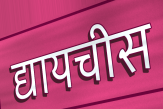
द्यायचीस